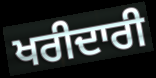
ਖਰੀਦਾਰੀ